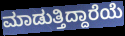
ಮಾಡುತ್ತಿದ್ದಾರೆಯೆ